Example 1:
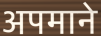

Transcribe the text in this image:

अपमाने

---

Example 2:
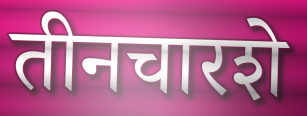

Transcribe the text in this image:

तीनचारशे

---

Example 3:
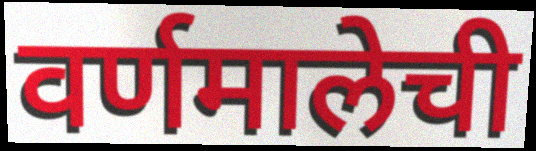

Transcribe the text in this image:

वर्णमालेची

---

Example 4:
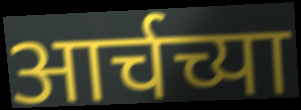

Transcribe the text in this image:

आर्चच्या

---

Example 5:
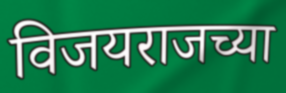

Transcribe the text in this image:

विजयराजच्या